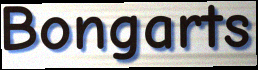
Bongarts